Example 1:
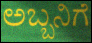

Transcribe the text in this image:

ಅಬ್ಬನಿಗೆ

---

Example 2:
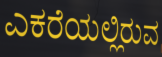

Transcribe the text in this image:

ಎಕರೆಯಲ್ಲಿರುವ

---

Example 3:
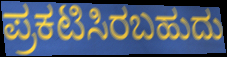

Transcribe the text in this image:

ಪ್ರಕಟಿಸಿರಬಹುದು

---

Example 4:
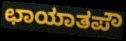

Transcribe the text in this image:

ಛಾಯಾತಪೌ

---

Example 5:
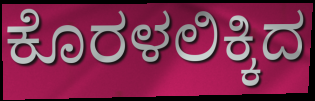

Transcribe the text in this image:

ಕೊರಳಲಿಕ್ಕಿದ